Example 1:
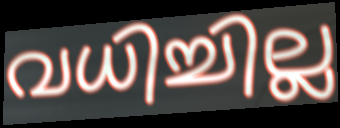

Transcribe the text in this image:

വധിച്ചില്ല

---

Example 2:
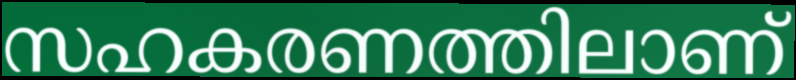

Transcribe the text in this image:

സഹകരണത്തിലാണ്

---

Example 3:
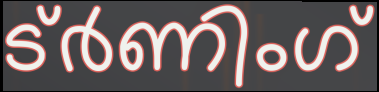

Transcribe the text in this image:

ട്ർണിംഗ്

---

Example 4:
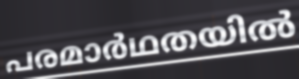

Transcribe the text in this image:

പരമാർഥതയിൽ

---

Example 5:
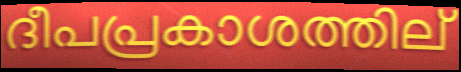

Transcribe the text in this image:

ദീപപ്രകാശത്തില്